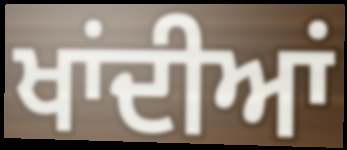
ਖਾਂਦੀਆਂ